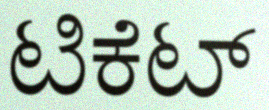
ಟಿಕೆಟ್